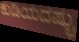
ಕುಡಿಯದಷ್ಟು